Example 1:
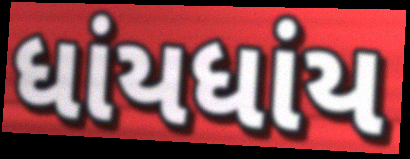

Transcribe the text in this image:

ધાંયધાંય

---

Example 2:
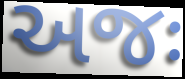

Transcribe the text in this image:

અજઃ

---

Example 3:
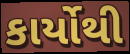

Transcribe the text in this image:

કાર્યોથી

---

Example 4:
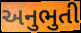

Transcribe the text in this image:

અનુભુતી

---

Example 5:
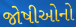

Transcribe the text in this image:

જોષીઓનો